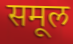
समूल